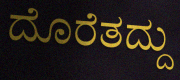
ದೊರೆತದ್ದು